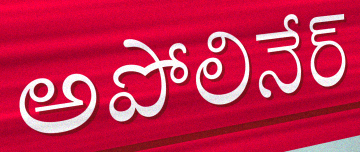
అపోలినేర్